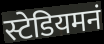
स्टेडियमनं